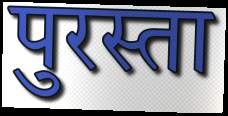
पुरस्ता